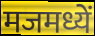
मजमध्यें